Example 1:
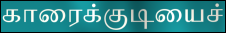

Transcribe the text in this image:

காரைக்குடியைச்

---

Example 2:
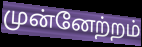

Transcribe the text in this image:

முன்னேற்றம்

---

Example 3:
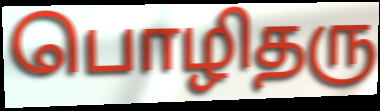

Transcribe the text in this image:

பொழிதரு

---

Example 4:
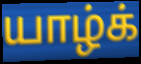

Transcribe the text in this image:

யாழ்க்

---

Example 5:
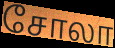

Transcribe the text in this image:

சோலா